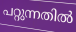
പറ്റുന്നതിൽ